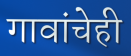
गावांचेही